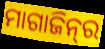
ମାଗାଜିନ୍‍ର